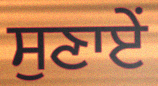
ਸੁਣਾਏਂ